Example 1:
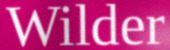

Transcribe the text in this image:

Wilder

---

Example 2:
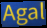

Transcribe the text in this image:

Agal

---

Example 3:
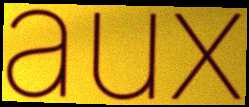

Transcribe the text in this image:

aux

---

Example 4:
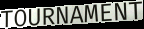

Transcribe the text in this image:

TOURNAMENT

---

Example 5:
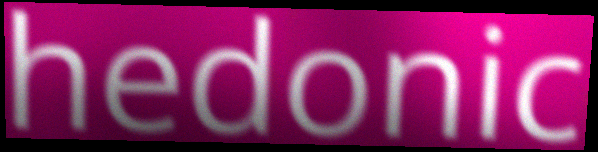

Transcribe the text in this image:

hedonic